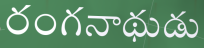
రంగనాథుడు